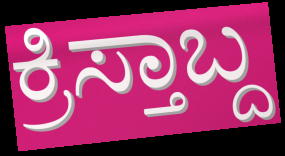
ಕ್ರಿಸ್ತಾಬ್ದ